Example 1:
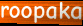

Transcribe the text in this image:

roopaka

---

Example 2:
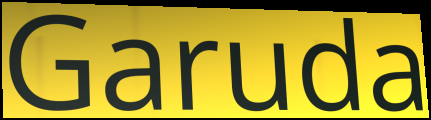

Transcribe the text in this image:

Garuda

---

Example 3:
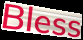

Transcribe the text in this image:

Bless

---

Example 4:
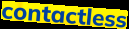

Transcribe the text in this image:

contactless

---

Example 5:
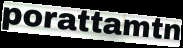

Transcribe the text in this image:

porattamtn